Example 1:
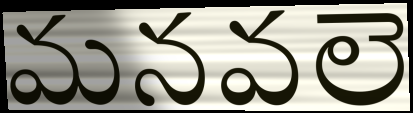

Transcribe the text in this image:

మనవలె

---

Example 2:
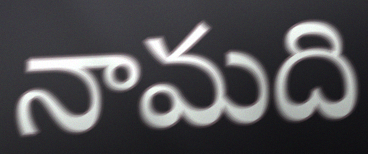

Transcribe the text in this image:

నామది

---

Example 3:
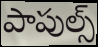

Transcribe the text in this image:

పాపుల్స్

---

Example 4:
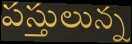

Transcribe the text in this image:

పస్తులున్న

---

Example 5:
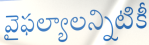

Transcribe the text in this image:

వైఫల్యాలన్నిటికీ